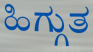
ಹಿಗ್ಗುತ